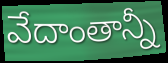
వేదాంతాన్నీ